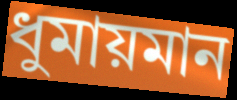
ধুমায়মান